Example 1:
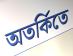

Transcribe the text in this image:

অতর্কিতে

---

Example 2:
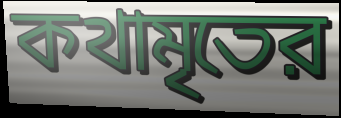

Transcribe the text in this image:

কথামৃতের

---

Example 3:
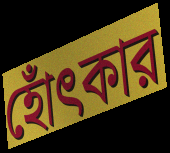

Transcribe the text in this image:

হোঁৎকার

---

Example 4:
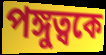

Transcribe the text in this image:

পঙ্গুত্বকে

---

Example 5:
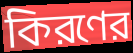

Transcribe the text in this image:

কিরণের